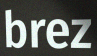
brez